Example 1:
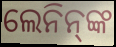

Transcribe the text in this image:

ଲେନିନ୍‌ଙ୍କ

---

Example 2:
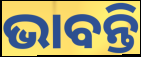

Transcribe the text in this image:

ଭାବନ୍ତି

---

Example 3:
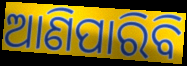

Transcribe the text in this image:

ଆଣିପାରିବି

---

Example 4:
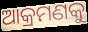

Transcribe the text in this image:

ଆକ୍ରମଣକୁ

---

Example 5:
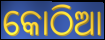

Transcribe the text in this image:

କୋଠିଆ